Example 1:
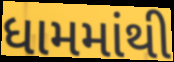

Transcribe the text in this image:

ધામમાંથી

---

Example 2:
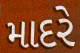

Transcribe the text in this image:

માદરે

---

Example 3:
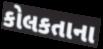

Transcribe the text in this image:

કોલકતાના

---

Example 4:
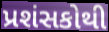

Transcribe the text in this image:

પ્રશંસકોથી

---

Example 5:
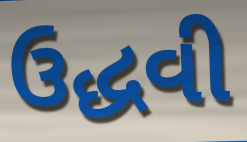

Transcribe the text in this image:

ઉદ્ધવી